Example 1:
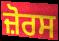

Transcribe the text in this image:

ਜ਼ੋਰਸ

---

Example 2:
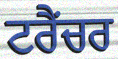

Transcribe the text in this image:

ਟਰੈਂਚਰ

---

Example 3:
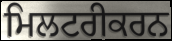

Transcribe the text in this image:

ਮਿਲਟਰੀਕਰਨ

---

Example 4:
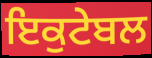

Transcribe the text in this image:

ਇਕੁਟੇਬਲ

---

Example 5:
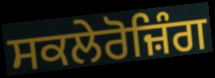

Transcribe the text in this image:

ਸਕਲੇਰੋਜ਼ਿੰਗ